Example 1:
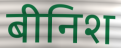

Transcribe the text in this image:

बीनिश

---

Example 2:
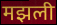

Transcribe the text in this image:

मझली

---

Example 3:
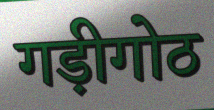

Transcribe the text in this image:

गड़ीगोठ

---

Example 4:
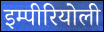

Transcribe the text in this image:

इम्पीरियोली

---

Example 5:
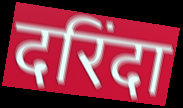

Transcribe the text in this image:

दरिंदा